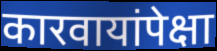
कारवायांपेक्षा